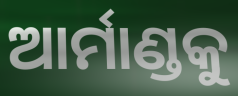
ଆର୍ମାଣ୍ଡକୁ